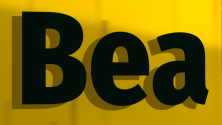
Bea